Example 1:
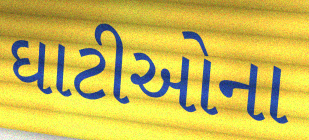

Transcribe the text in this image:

ઘાટીઓના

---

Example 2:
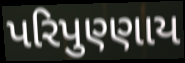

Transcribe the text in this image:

પરિપુણ્ણાય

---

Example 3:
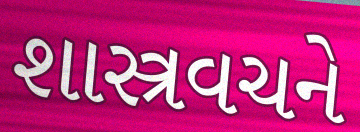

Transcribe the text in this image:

શાસ્ત્રવચને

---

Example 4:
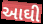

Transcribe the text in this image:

આઘી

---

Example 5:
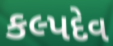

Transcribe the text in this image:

કલ્પદેવ